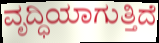
ವೃದ್ಧಿಯಾಗುತ್ತಿದೆ